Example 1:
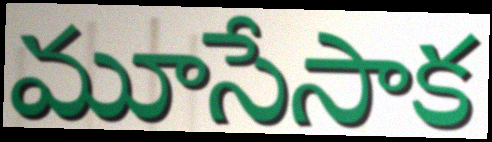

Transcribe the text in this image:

మూసేసాక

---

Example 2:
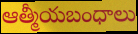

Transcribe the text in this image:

ఆత్మీయబంధాలు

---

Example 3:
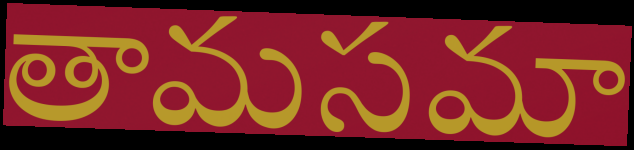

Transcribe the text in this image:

తామసమా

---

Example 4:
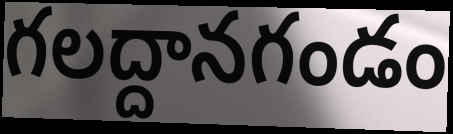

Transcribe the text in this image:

గలద్దానగండం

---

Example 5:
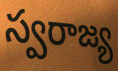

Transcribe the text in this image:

స్వరాజ్య